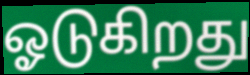
ஓடுகிறது